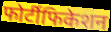
फोर्टीफिकेशन